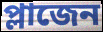
প্লাজেন